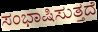
ಸಂಭಾಷಿಸುತ್ತದೆ